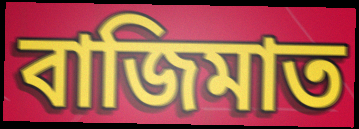
বাজিমাত